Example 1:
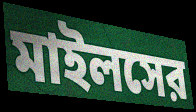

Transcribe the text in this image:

মাইলসের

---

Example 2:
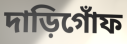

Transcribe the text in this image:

দাড়িগোঁফ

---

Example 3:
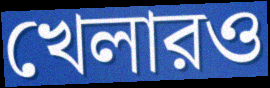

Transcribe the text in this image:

খেলারও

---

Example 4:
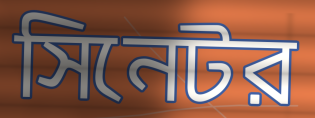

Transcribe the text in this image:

সিনেটর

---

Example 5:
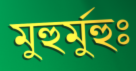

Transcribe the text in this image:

মুহুর্মুহুঃ